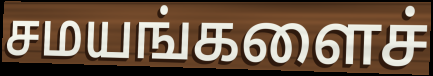
சமயங்களைச்